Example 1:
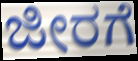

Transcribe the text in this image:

ಜೀರಗೆ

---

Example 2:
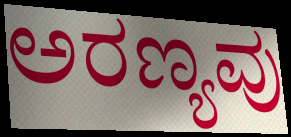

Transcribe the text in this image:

ಅರಣ್ಯವು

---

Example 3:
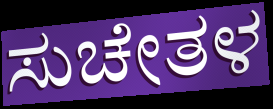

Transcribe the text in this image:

ಸುಚೇತಳ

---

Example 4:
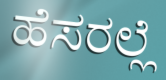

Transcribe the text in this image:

ಹೆಸರಲ್ಲೆ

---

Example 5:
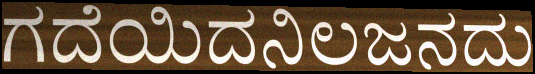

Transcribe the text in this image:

ಗದೆಯಿದನಿಲಜನದು